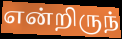
என்றிருந்